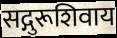
सद्गुरूशिवाय